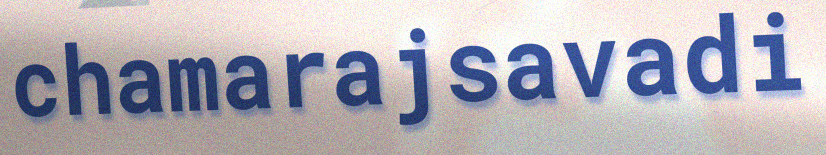
chamarajsavadi